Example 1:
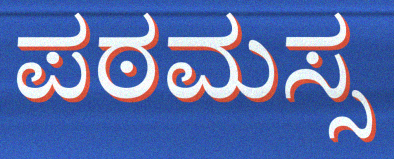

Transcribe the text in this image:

ಪಠಮಸ್ಸ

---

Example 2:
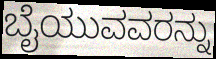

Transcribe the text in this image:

ಬೈಯುವವರನ್ನು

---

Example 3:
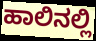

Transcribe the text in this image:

ಹಾಲಿನಲ್ಲಿ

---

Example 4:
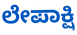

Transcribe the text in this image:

ಲೇಪಾಕ್ಷಿ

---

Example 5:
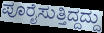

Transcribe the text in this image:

ಪೂರೈಸುತ್ತಿದ್ದದ್ದು